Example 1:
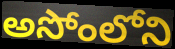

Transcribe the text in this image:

అసోంలోని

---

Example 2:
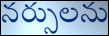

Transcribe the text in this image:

నర్సులను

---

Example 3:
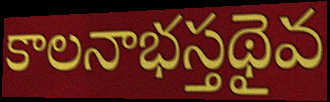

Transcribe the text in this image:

కాలనాభస్తథైవ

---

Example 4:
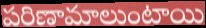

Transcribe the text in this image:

పరిణామాలుంటాయి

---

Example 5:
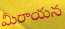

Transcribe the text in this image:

మీరాయన